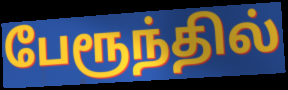
பேரூந்தில்